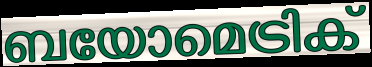
ബയോമെട്രിക്